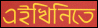
এইখিনিতে